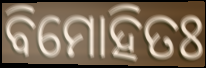
ବିମୋହିତଃ